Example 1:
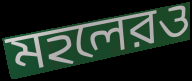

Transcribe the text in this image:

মহলেরও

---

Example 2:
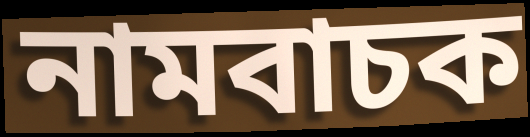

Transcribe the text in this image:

নামবাচক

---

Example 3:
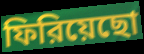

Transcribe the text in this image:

ফিরিয়েছো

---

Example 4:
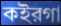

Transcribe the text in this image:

কইরগা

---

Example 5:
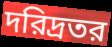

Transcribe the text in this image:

দরিদ্রতর